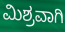
ಮಿಶ್ರವಾಗಿ